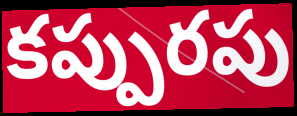
కప్పురపు